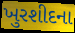
ખુરશીદના